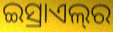
ଇସ୍ରାଏଲ୍‌ର